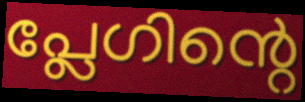
പ്ലേഗിന്റെ